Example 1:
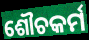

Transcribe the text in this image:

ଶୌଚକର୍ମ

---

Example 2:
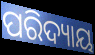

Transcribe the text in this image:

ପରିଦ୍ୟାୟ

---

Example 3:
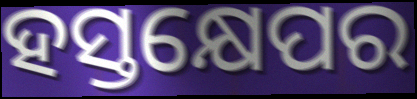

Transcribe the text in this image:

ହସ୍ତକ୍ଷେପର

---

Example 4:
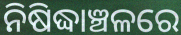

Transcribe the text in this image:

ନିଷିଦ୍ଧାଞ୍ଚଳରେ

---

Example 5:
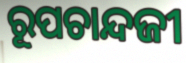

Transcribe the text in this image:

ରୂପଚାନ୍ଦଜୀ